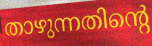
താഴുന്നതിന്റെ